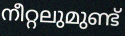
നീറ്റലുമുണ്ട്